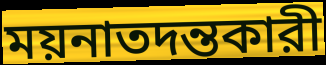
ময়নাতদন্তকারী